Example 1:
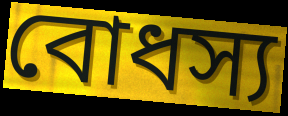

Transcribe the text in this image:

বোধস্য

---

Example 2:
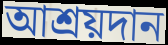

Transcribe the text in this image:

আশ্রয়দান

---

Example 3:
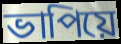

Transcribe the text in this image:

ভাপিয়ে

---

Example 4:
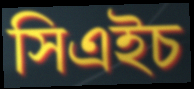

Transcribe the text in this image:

সিএইচ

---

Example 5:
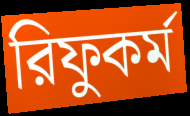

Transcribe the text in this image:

রিফুকর্ম